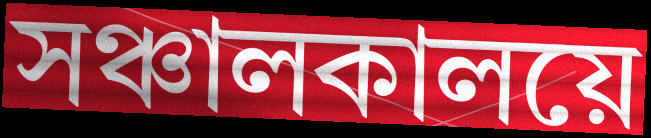
সঞ্চালকালয়ে